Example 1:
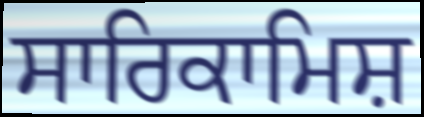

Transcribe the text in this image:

ਸਾਰਿਕਾਮਿਸ਼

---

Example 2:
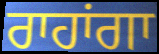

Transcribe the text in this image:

ਰਾਹਾਂਗਾ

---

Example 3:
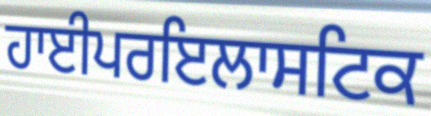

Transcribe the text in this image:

ਹਾਈਪਰਇਲਾਸਟਿਕ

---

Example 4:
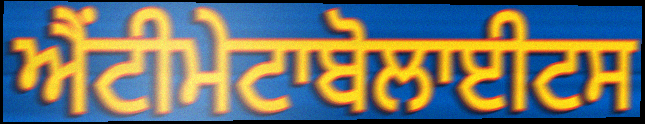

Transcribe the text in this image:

ਐਂਟੀਮੇਟਾਬੋਲਾਈਟਸ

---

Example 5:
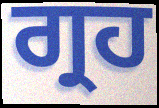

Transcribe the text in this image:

ਗ੍ਰਹ